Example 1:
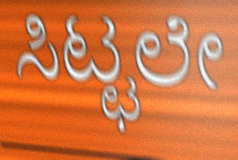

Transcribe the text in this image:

ಸಿಟ್ಟಲೇ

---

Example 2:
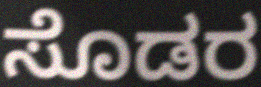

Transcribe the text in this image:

ಸೊಡರ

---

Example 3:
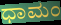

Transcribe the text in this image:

ಧಾಮಂ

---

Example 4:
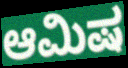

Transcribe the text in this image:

ಆಮಿಷ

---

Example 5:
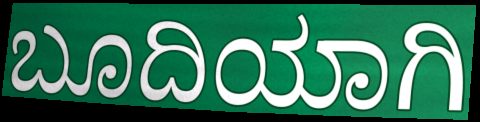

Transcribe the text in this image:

ಬೂದಿಯಾಗಿ